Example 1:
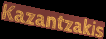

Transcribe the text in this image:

Kazantzakis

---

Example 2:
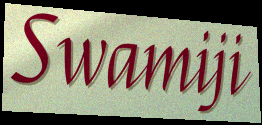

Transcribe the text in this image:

Swamiji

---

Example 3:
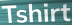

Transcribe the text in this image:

Tshirt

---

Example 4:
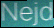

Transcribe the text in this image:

Nejd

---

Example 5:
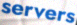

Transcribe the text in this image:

servers